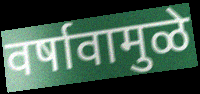
वर्षावामुळे